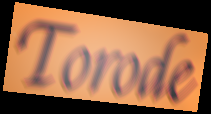
Torode